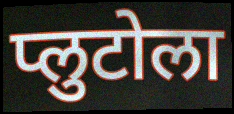
प्लुटोला